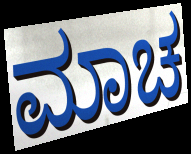
ಮಾಚ